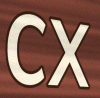
cx